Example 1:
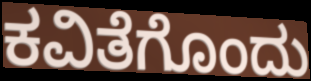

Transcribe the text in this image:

ಕವಿತೆಗೊಂದು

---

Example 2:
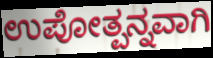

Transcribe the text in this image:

ಉಪೋತ್ಪನ್ನವಾಗಿ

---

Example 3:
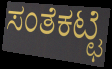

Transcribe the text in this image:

ಸಂತೆಕಟ್ಟೆ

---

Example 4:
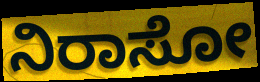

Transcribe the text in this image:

ನಿರಾಸೋ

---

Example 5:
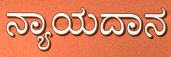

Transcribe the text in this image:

ನ್ಯಾಯದಾನ